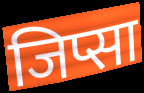
जिप्सा